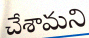
చేశామని